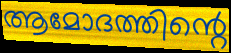
ആമോദത്തിന്റെ